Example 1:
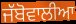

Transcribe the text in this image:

ਜੱਬੋਵਾਲੀਆ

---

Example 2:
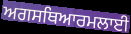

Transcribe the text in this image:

ਅਗਸਥਿਆਰਮਲਾਈ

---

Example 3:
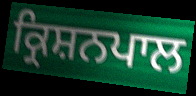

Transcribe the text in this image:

ਕ੍ਰਿਸ਼ਨਪਾਲ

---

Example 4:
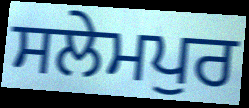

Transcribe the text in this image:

ਸਲੇਮਪੁਰ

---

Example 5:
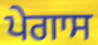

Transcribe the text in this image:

ਪੇਗਾਸ